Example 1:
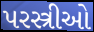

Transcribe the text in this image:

પરસ્ત્રીઓ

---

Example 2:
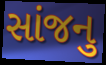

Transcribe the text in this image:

સાંજનુ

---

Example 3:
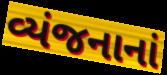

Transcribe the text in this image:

વ્યંજનાનાં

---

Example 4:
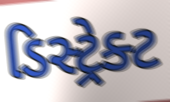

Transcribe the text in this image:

ડિસ્ટ્રેક્ટ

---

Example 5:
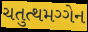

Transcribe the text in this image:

ચતુત્થમગ્ગેન